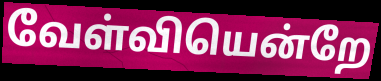
வேள்வியென்றே